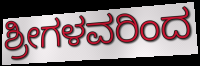
ಶ್ರೀಗಳವರಿಂದ